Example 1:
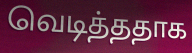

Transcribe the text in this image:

வெடித்ததாக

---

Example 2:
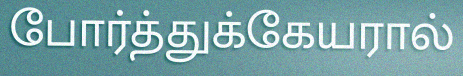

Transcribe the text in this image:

போர்த்துக்கேயரால்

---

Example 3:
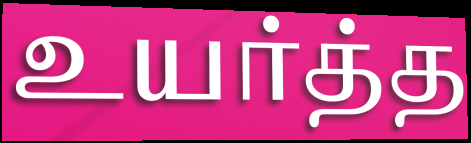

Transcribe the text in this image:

உயர்த்த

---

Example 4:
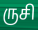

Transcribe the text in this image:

ருசி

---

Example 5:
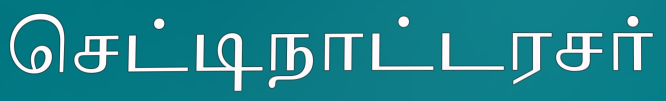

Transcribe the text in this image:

செட்டிநாட்டரசர்